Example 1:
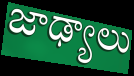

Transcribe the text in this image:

జాఢ్యాలు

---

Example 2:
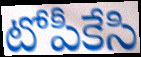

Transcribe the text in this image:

టోపీకేసి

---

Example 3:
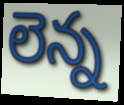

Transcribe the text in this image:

లెన్న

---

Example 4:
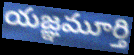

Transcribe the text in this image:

యజ్ఞమూర్తి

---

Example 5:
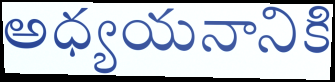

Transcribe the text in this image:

అధ్యయనానికి